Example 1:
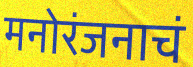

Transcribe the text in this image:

मनोरंजनाचं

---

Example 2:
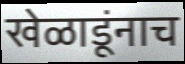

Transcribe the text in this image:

खेळाडूंनाच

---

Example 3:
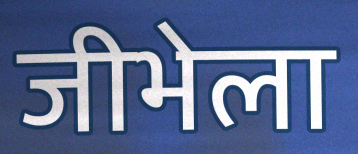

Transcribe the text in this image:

जीभेला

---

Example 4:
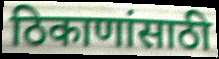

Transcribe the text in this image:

ठिकाणांसाठी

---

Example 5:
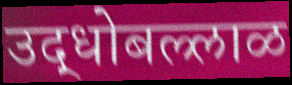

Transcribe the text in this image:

उद्धोबल्लाळ